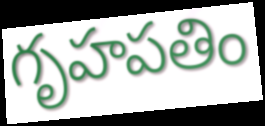
గృహపతిం